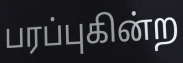
பரப்புகின்ற